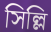
সিল্লি